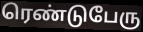
ரெண்டுபேரு